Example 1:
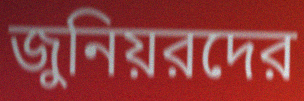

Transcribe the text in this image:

জুনিয়রদের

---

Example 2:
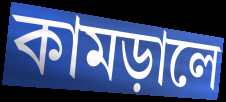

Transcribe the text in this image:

কামড়ালে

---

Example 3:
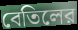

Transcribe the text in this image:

বেতিলের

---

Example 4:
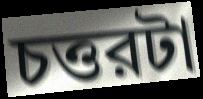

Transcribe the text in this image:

চত্তরটা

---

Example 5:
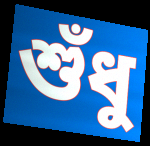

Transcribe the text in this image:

শুঁধু